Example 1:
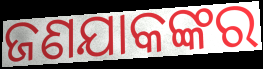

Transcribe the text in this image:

ଜଣଯାକଙ୍କର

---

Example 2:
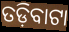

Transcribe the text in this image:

ତଡ଼ିବାଟା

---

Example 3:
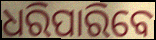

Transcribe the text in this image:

ଧରିପାରିବେ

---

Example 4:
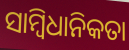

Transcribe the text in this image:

ସାମ୍ବିଧାନିକତା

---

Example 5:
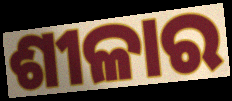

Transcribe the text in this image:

ଶୀଳାର